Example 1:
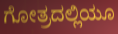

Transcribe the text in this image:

ಗೋತ್ರದಲ್ಲಿಯೂ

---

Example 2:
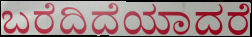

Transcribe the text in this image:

ಬರೆದಿದೆಯಾದರೆ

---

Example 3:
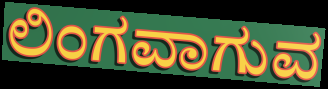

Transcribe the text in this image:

ಲಿಂಗವಾಗುವ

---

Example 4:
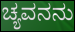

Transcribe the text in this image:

ಚ್ಯವನನು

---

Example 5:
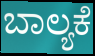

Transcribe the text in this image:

ಬಾಲ್ಯಕೆ